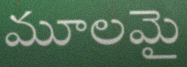
మూలమై